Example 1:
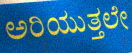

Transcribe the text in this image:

ಅರಿಯುತ್ತಲೇ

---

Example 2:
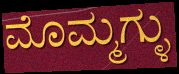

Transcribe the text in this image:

ಮೊಮ್ಮಗ್ಳು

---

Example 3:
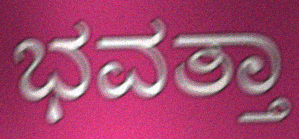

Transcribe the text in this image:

ಭವತ್ತಾ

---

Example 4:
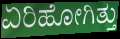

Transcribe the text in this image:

ಏರಿಹೋಗಿತ್ತು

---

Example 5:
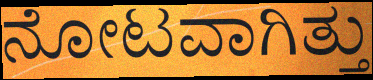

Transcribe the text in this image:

ನೋಟವಾಗಿತ್ತು